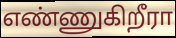
எண்ணுகிறீரா